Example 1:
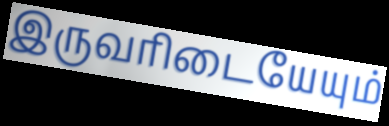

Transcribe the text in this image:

இருவரிடையேயும்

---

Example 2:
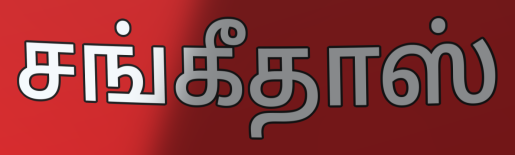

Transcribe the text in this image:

சங்கீதாஸ்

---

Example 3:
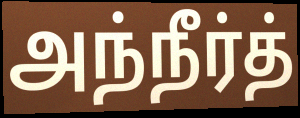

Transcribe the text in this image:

அந்நீர்த்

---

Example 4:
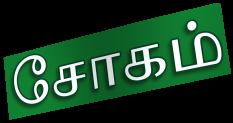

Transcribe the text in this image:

சோகம்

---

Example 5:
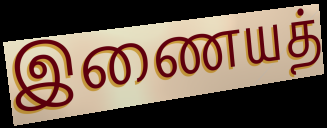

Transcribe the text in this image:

இணையத்